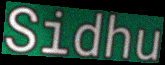
Sidhu